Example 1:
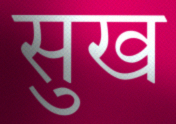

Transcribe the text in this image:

सुख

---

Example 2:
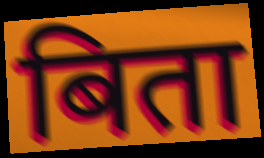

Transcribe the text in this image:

बिता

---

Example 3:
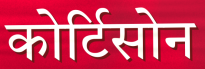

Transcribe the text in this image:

कोर्टिसोन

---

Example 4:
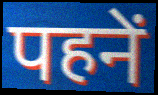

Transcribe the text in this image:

पहनें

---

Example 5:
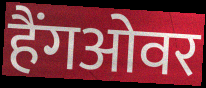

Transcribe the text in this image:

हैंगओवर